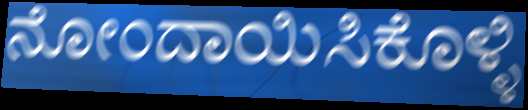
ನೋಂದಾಯಿಸಿಕೊಳ್ಳಿ